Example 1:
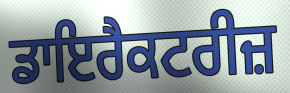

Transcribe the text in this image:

ਡਾਇਰੈਕਟਰੀਜ਼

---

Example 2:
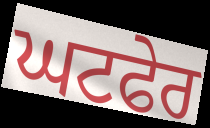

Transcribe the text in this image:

ਘਟਫੇਰ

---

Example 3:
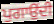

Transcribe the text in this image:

ਪੁਗਾਉਂਦੀ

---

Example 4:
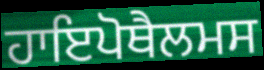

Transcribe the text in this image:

ਹਾਇਪੋਥੈਲਮਸ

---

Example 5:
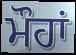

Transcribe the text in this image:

ਮੌਹਾਂ